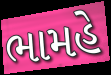
ભામહે